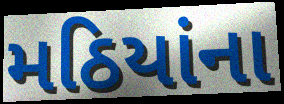
મઠિયાંના